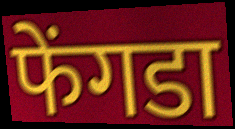
फेंगडा